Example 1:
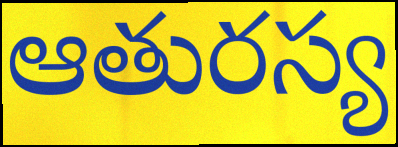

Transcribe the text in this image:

ఆతురస్య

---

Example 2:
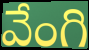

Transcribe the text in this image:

వేంగి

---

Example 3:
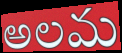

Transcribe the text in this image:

అలమ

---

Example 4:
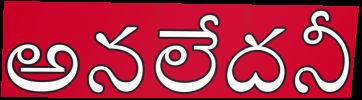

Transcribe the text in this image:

అనలేదనీ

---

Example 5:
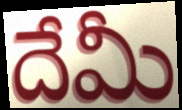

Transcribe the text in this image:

దేమీ